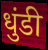
धुंडी